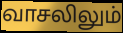
வாசலிலும்